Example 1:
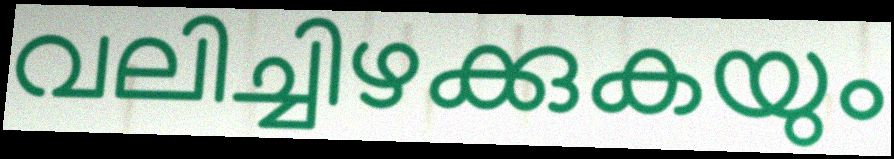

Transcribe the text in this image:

വലിച്ചിഴക്കുകയും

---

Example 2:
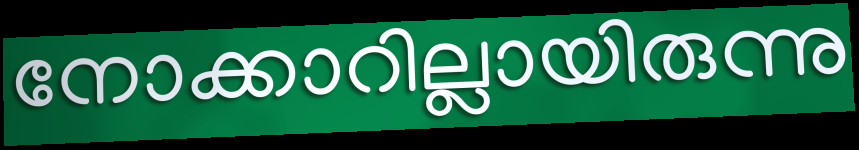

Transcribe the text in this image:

നോക്കാറില്ലായിരുന്നു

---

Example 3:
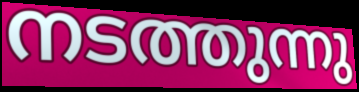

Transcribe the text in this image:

നടത്തുന്നു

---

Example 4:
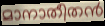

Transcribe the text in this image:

മാനാതീതൻ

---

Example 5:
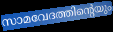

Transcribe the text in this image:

സാമവേദത്തിന്റെയും